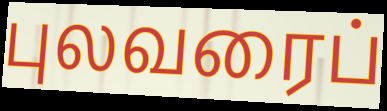
புலவரைப்